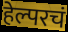
हेल्परचं